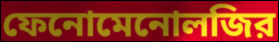
ফেনোমেনোলজির